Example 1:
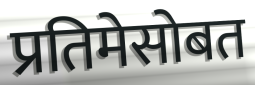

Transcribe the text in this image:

प्रतिमेसोबत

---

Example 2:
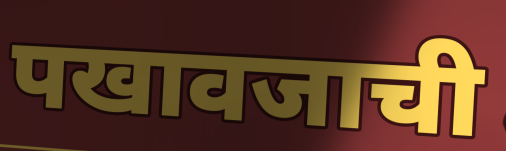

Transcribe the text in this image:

पखावजाची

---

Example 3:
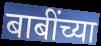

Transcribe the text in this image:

बाबींच्या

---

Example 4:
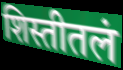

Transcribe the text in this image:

शिस्तीतलं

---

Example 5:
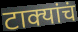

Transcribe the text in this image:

टाक्यांचं